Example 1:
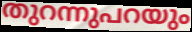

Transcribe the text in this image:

തുറന്നുപറയും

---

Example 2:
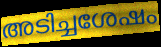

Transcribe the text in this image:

അടിച്ചശേഷം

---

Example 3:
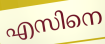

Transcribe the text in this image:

എസിനെ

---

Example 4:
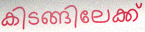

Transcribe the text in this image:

കിടങ്ങിലേക്ക്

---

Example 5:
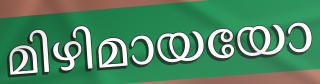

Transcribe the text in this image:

മിഴിമായയോ